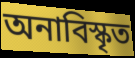
অনাবিস্কৃত